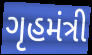
ગૃહમંત્રી